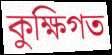
কুক্ষিগত